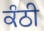
ਕੰਠੀ